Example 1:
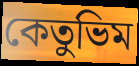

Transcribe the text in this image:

কেতুভিম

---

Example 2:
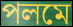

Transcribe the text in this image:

পলমে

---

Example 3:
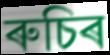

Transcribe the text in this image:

ৰুচিৰ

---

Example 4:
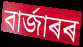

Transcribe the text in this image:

বাৰ্জাৰৰ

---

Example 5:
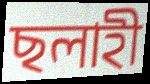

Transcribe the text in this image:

ছলাহী